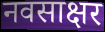
नवसाक्षर